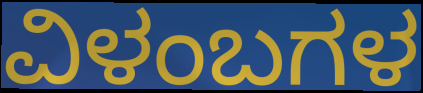
ವಿಳಂಬಗಳ